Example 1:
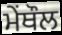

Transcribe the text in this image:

ਮੇਂਥੌਲ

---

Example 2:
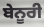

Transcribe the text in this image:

ਬੇਨੂਰੀ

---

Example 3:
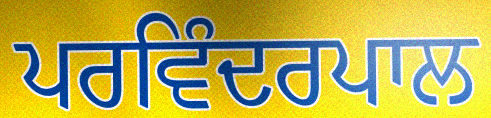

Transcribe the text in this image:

ਪਰਵਿੰਦਰਪਾਲ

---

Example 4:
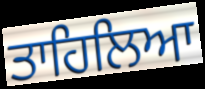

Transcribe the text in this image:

ਤਾਹਿਲਿਆ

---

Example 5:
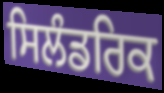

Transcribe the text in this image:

ਸਿਲੰਡਰਿਕ